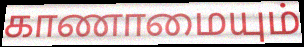
காணாமையும்